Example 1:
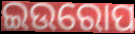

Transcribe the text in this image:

ଇଉରୋପ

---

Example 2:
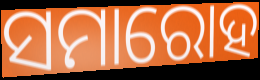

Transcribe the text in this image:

ସମାରୋହ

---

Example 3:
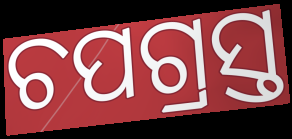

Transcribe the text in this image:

ଚପଗ୍ରସ୍ତ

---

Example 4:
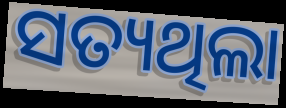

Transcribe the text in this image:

ସତ୍ୟଥିଲା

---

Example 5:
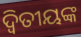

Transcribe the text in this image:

ଦ୍ଵିତୀୟଙ୍କ